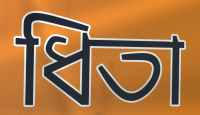
ধিতা